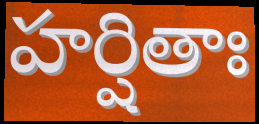
హర్షితాః